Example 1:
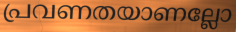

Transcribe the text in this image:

പ്രവണതയാണല്ലോ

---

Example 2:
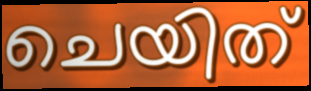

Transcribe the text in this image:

ചെയിത്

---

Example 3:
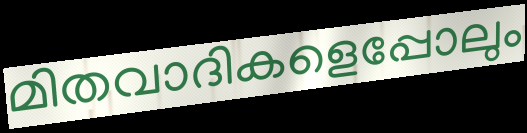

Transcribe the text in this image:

മിതവാദികളെപ്പോലും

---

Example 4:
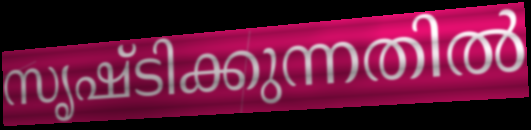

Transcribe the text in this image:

സൃഷ്ടിക്കുന്നതിൽ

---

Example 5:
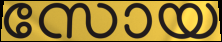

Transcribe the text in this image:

സോയ